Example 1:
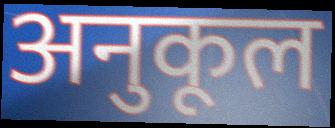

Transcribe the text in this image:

अनुकूल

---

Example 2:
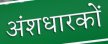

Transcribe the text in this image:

अंशधारकों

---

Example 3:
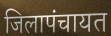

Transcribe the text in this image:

जिलापंचायत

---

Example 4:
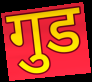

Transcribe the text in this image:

गुड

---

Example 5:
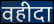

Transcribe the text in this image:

वहीदा